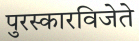
पुरस्कारविजेते